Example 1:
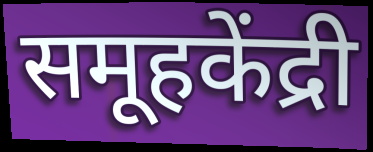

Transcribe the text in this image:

समूहकेंद्री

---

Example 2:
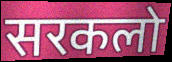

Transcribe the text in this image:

सरकलो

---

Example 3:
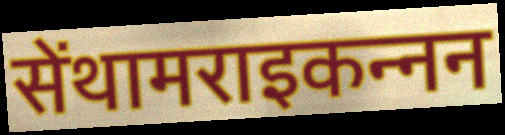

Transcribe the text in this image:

सेंथामराइकन्नन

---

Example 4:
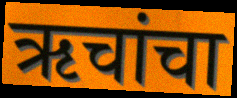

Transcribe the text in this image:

ऋचांचा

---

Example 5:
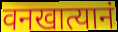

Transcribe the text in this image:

वनखात्यानं